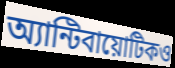
অ্যান্টিবায়োটিকও